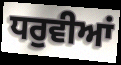
ਧਰੁਵੀਆਂ